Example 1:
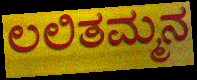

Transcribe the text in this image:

ಲಲಿತಮ್ಮನ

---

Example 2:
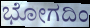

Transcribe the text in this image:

ಭೋಗದಿಂ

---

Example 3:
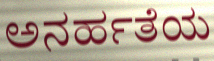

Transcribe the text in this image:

ಅನರ್ಹತೆಯ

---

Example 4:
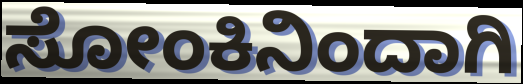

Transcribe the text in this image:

ಸೋಂಕಿನಿಂದಾಗಿ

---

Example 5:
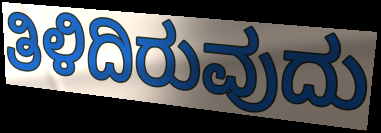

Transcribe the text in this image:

ತಿಳಿದಿರುವುದು